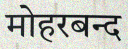
मोहरबन्द